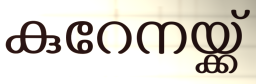
കുറേനയ്ക്ക്